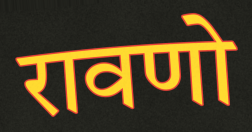
रावणो